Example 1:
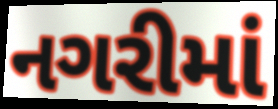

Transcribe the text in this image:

નગરીમાં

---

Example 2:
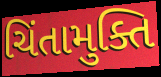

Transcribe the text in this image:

ચિંતામુક્તિ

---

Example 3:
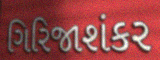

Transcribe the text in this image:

ગિરિજાશંકર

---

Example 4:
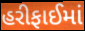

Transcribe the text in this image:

હરીફાઈમાં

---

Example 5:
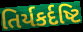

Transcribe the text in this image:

તિર્યકર્દષ્ટિ